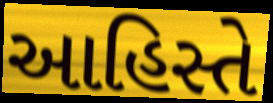
આહિસ્તે